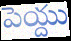
పెయ్దు